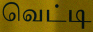
வெட்டி